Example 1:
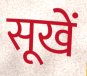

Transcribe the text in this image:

सूखें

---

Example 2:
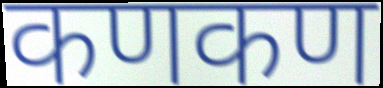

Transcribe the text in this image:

कणकण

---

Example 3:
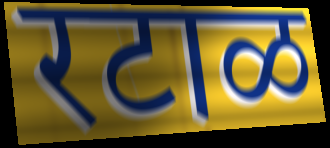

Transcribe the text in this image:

रटाळ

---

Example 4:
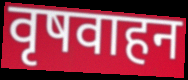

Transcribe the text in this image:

वृषवाहन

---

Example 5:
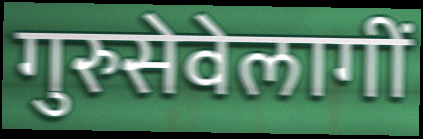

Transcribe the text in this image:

गुरुसेवेलागीं